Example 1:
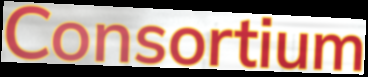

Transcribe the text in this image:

Consortium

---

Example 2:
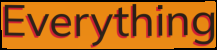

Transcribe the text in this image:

Everything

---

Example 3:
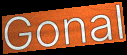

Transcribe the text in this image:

Gonal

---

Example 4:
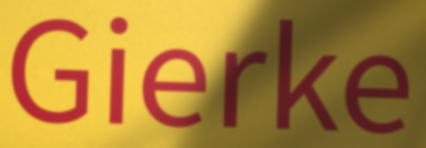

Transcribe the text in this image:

Gierke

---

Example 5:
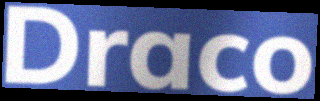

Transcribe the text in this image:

Draco